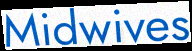
Midwives